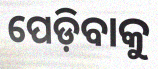
ପେଡ଼ିବାକୁ